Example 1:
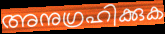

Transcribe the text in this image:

അനുഗ്രഹിക്കുക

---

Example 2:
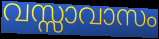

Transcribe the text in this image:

വസ്സാവാസം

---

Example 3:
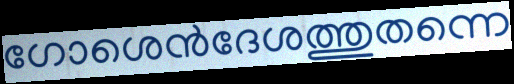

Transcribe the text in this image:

ഗോശെൻദേശത്തുതന്നെ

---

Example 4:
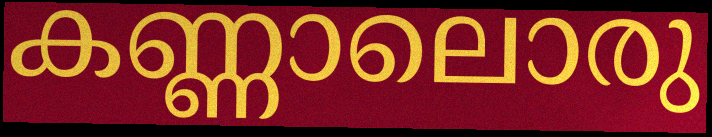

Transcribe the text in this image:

കണ്ണാലൊരു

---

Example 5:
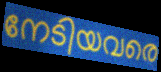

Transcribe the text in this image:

നേടിയവരെ